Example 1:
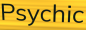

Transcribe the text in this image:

Psychic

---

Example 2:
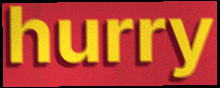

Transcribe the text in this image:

hurry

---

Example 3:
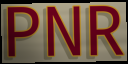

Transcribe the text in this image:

PNR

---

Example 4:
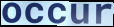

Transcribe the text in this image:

occur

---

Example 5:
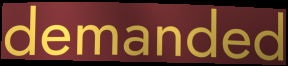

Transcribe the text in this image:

demanded